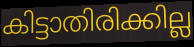
കിട്ടാതിരിക്കില്ല